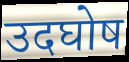
उदघोष